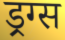
ड्रग्स